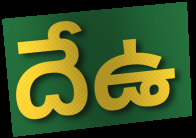
దేఉ